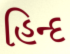
હિન્દ